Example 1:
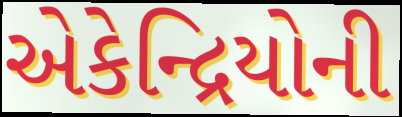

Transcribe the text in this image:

એકેન્દ્રિયોની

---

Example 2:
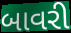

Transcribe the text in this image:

બાવરી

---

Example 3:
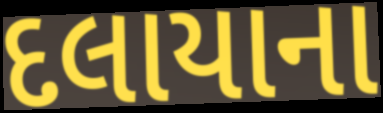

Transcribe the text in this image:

દલાયાના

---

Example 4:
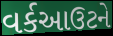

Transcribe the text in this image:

વર્કઆઉટને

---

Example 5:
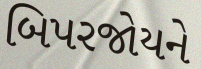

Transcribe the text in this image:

બિપરજોયને